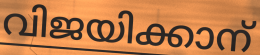
വിജയിക്കാന്